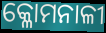
କ୍ଳୋମନାଳୀ